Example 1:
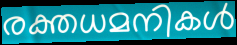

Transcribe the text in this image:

രക്തധമനികൾ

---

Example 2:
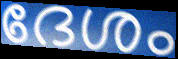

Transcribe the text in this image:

ദേശം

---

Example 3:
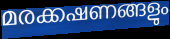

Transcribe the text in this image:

മരക്കഷണങ്ങളും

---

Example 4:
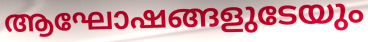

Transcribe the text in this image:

ആഘോഷങ്ങളുടേയും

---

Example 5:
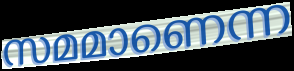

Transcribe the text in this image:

സമമാണെന്ന